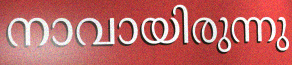
നാവായിരുന്നു